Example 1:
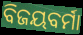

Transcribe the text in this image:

ବିଜୟବର୍ମା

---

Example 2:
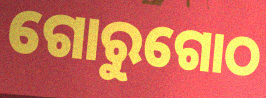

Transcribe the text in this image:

ଗୋରୁଗୋଠ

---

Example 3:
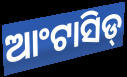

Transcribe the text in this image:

ଆଂଟାସିଡ୍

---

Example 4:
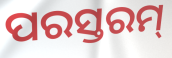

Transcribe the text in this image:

ପରସ୍ତରମ୍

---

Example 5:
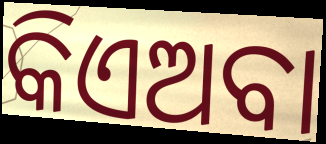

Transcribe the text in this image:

କିଏଅବା